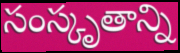
సంస్కృతాన్ని